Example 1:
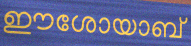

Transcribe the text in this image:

ഈശോയാബ്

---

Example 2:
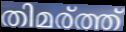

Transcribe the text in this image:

തിമര്ത്ത്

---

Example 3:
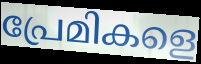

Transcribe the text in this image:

പ്രേമികളെ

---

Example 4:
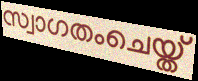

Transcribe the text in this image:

സ്വാഗതംചെയ്ത്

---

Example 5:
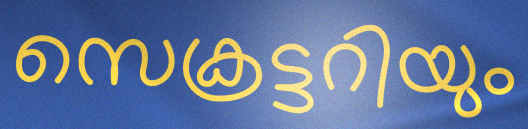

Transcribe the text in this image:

സെക്രട്ടറിയും